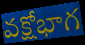
వక్షోభాగ